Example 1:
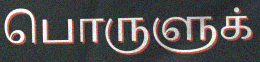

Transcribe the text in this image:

பொருளுக்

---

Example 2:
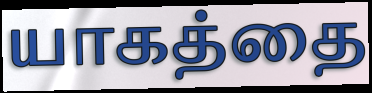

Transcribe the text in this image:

யாகத்தை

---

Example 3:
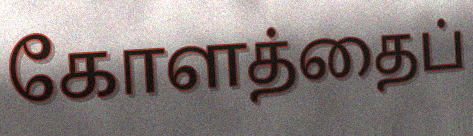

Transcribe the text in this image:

கோளத்தைப்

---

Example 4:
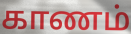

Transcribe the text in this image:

காணம்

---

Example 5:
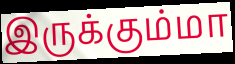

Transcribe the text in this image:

இருக்கும்மா